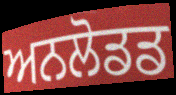
ਅਨਲੋਡਡ